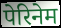
पेरिनेम